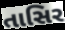
તાસિર